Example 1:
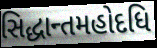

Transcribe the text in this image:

સિદ્ધાન્તમહોદધિ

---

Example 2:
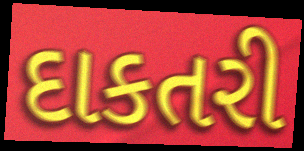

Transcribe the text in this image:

દાકતરી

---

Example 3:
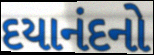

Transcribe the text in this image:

દયાનંદનો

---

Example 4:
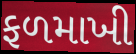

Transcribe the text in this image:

ફળમાખી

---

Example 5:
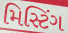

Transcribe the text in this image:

મિસ્ટિંગ